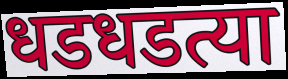
धडधडत्या